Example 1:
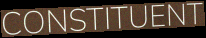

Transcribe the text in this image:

CONSTITUENT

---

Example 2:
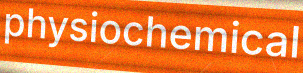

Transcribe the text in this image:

physiochemical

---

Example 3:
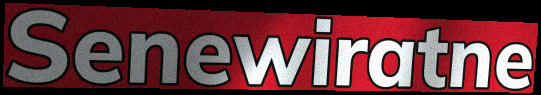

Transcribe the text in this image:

Senewiratne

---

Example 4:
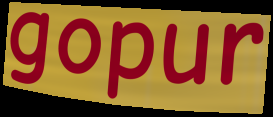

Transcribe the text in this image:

gopur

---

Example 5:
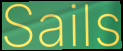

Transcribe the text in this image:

Sails